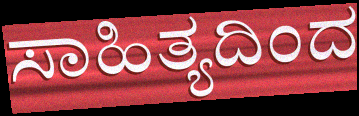
ಸಾಹಿತ್ಯದಿಂದ